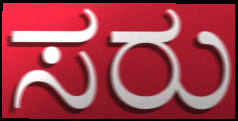
ಸರು